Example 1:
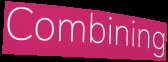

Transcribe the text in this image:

Combining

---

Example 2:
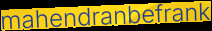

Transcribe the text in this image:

mahendranbefrank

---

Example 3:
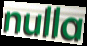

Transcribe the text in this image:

nulla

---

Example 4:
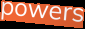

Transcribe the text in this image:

powers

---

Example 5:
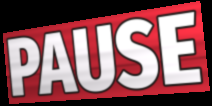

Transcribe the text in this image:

PAUSE